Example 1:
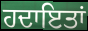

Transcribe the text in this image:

ਹਦਾਇਤਾਂ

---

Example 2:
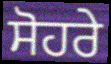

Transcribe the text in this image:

ਸੋਹਰੇ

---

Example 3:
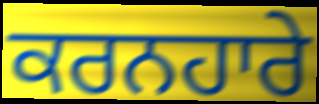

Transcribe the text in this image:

ਕਰਨਹਾਰੇ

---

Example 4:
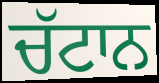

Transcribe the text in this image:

ਚੱਟਾਨ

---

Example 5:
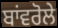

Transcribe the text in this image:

ਬਾਂਵਰੋਲੇ